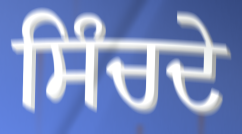
ਸਿੰਚਦੇ